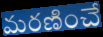
మరణించే